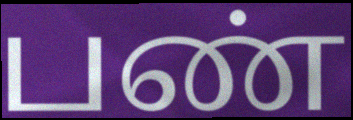
பண்